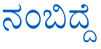
ನಂಬಿದ್ದೆ